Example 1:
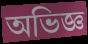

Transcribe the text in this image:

অভিজ্ঞ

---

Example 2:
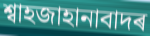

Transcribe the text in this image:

শ্বাহজাহানাবাদৰ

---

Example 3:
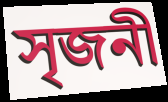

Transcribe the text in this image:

সৃজনী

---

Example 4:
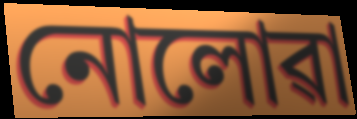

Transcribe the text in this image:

নোলোৱা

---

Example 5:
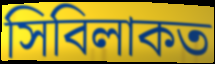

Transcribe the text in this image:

সিবিলাকত